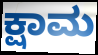
ಕ್ಷಾಮ